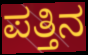
ಪತ್ತಿನ